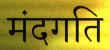
मंदगति